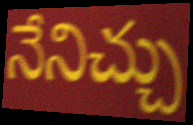
నేనిచ్చు